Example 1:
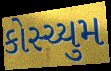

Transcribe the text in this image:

કોસ્ચ્યુમ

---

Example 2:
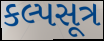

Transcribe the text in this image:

કલ્પસૂત્ર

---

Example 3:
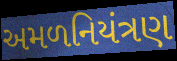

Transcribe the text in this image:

અમળનિયંત્રણ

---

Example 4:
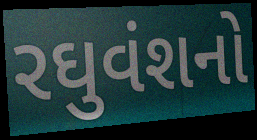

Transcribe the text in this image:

રઘુવંશનો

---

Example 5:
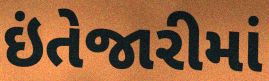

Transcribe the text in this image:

ઇંતેજારીમાં